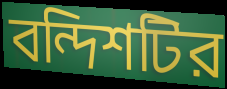
বন্দিশটির